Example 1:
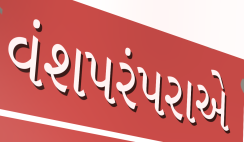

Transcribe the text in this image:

વંશપરંપરાએ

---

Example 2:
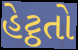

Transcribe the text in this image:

હેટ્ઠતો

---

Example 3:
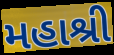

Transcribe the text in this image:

મહાશ્રી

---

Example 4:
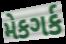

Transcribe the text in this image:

મેકગર્ક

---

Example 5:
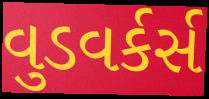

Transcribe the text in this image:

વુડવર્કર્સ